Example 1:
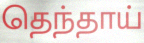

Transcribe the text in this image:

தெந்தாய்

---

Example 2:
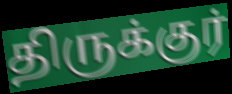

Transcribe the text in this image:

திருக்குர்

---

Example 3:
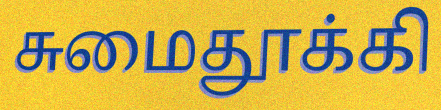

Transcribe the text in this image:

சுமைதூக்கி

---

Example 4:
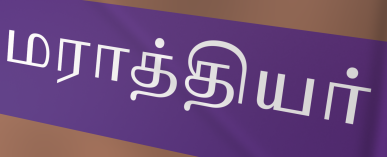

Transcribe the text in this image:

மராத்தியர்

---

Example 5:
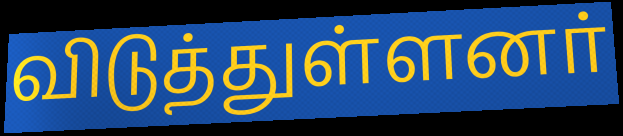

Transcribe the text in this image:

விடுத்துள்ளனர்